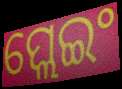
ପ୍ଲେଇଂ